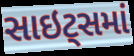
સાઇટ્સમાં